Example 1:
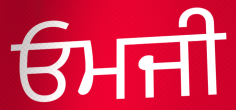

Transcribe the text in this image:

ਓਮਜੀ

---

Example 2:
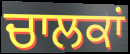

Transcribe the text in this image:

ਚਾਲਕਾਂ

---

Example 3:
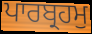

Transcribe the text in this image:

ਪਾਰਬ੍ਰਹਮੁ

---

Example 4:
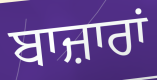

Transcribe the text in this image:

ਬਾਜ਼ਾਰਾਂ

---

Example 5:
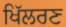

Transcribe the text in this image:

ਖਿੱਲਰਣ